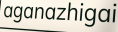
aganazhigai